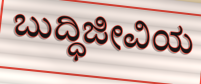
ಬುದ್ಧಿಜೀವಿಯ